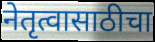
नेतृत्वासाठीचा